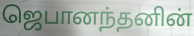
ஜெபானந்தனின்